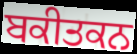
ਬਕੀਤਕਨ